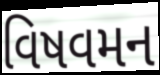
વિષવમન